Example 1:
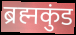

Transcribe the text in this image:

ब्रह्मकुंड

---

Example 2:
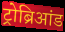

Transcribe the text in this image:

ट्रोब्रिआंड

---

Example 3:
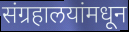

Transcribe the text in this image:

संग्रहालयांमधून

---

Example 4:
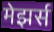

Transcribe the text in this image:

मेझर्स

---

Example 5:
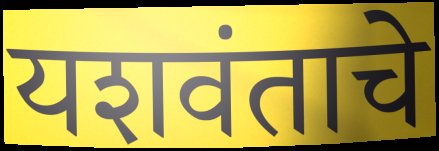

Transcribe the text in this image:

यशवंताचे